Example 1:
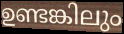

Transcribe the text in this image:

ഉണ്ടങ്കിലും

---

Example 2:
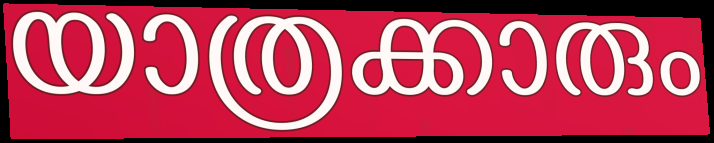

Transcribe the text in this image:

യാത്രക്കാരും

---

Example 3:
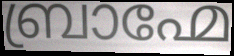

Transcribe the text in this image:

ബ്രാഹ്മേ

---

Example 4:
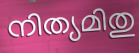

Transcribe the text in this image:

നിത്യമിതു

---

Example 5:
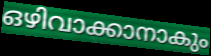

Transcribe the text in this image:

ഒഴിവാക്കാനാകും